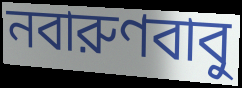
নবারুণবাবু